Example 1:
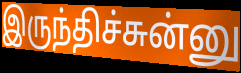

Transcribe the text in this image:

இருந்திச்சுன்னு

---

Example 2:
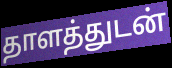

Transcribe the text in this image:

தாளத்துடன்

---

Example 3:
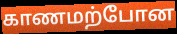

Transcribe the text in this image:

காணமற்போன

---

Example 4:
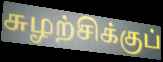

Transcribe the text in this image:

சுழற்சிக்குப்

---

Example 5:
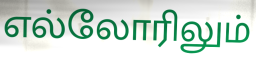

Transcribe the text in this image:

எல்லோரிலும்